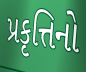
પ્રકૃત્તિનો